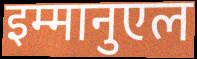
इम्मानुएल